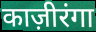
काज़ीरंगा